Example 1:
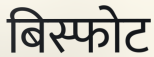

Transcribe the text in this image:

बिस्फोट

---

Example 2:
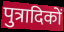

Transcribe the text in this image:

पुत्रादिकों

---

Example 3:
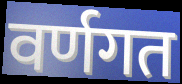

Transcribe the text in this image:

वर्णगत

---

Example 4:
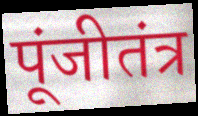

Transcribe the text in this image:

पूंजीतंत्र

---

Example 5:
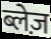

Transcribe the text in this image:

ब्लेज़